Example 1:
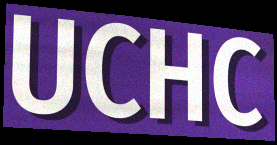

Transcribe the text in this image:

UCHC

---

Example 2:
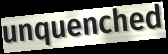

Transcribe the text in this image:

unquenched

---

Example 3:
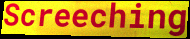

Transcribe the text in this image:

Screeching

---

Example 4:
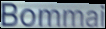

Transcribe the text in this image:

Bommai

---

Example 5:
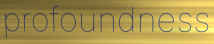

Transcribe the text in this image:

profoundness